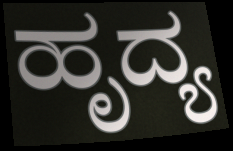
ಹೃದ್ಯ